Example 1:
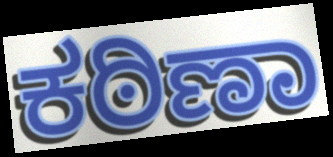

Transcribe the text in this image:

ಕಠಿಣಾ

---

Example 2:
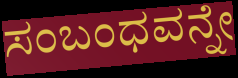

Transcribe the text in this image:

ಸಂಬಂಧವನ್ನೇ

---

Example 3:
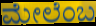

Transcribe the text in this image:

ಮೇಲೆಂಬ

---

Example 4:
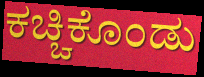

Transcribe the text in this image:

ಕಚ್ಚಿಕೊಂಡು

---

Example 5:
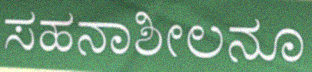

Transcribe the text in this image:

ಸಹನಾಶೀಲನೂ